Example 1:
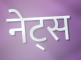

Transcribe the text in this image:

नेट्स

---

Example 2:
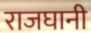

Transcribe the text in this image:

राजघानी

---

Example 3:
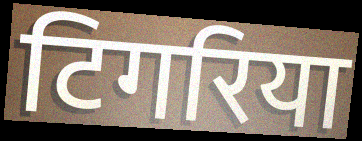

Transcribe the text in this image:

टिगरिया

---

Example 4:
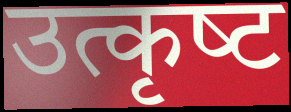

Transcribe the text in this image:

उत्‍कृष्‍ट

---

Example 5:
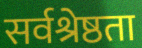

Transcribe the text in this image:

सर्वश्रेष्ठता